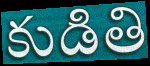
కుడితి